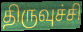
திருவுச்சி